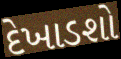
દેખાડશો